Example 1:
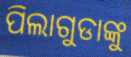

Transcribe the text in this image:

ପିଲାଗୁଡାଙ୍କୁ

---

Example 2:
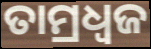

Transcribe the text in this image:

ତାମ୍ରଧ୍ୱଜ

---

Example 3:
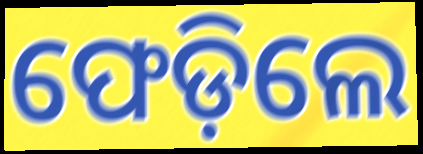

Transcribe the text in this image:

ଫେଡ଼ିଲେ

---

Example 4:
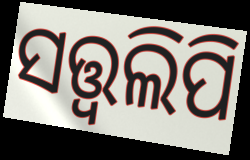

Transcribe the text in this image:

ସତ୍ତ୍ୱଲିପି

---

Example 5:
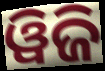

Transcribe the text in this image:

ୱିଜି